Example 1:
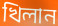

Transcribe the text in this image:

খিলান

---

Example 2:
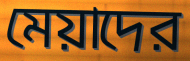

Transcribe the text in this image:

মেয়াদের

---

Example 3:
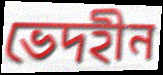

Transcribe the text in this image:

ভেদহীন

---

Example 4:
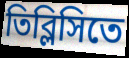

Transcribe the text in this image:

তিব্লিসিতে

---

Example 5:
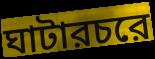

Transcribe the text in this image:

ঘাটারচরে